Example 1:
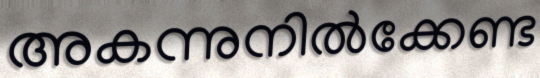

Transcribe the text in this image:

അകന്നുനിൽക്കേണ്ട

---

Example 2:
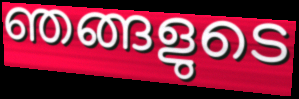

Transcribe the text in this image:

ഞങ്ങളുടെ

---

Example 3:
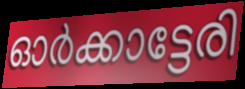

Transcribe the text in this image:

ഓർക്കാട്ടേരി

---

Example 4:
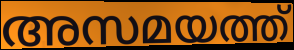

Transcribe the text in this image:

അസമയത്ത്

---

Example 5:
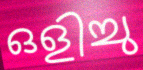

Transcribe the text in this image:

ഒളിച്ചു